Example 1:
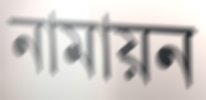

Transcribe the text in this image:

নামায়ন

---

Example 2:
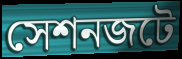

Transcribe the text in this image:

সেশনজটে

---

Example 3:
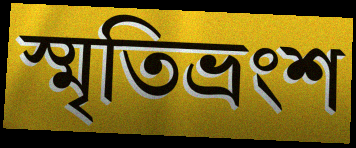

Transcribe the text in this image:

স্মৃতিভ্রংশ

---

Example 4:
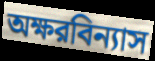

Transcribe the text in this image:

অক্ষরবিন্যাস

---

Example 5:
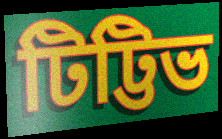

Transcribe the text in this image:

টিট্টিভ